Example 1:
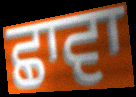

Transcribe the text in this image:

ਛਾਵਾ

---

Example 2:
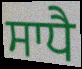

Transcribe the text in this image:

ਸਾਧੈ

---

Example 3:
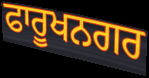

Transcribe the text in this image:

ਫਾਰੂਖਨਗਰ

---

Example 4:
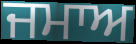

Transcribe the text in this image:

ਜਮਾਅ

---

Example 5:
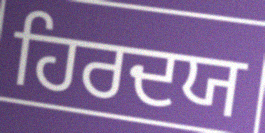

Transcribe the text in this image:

ਹਿਰਦਯ